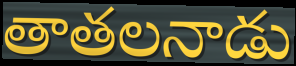
తాతలనాడు